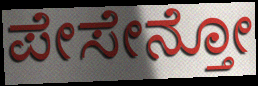
ಪೇಸೇನ್ತೋ